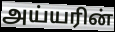
அய்யரின்